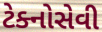
ટેક્નોસેવી